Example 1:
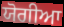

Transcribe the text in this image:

ਯੋਗੀਆ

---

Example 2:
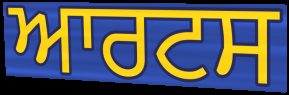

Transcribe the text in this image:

ਆਰਟਸ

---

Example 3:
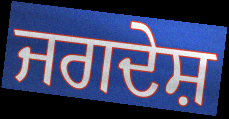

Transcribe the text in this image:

ਜਗਦੇਸ਼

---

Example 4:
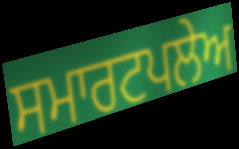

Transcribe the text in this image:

ਸਮਾਰਟਪਲੇਅ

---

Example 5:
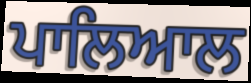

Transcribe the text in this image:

ਪਾਲਿਆਲ